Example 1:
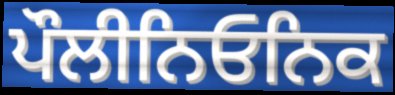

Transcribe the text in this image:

ਪੌਲੀਨਿਓਨਿਕ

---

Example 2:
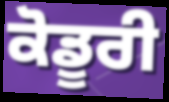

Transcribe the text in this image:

ਕੋਡੂਰੀ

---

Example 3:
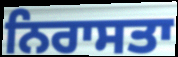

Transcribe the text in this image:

ਨਿਰਾਸਤਾ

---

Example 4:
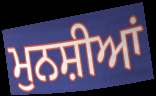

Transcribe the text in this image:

ਮੁਨਸ਼ੀਆਂ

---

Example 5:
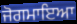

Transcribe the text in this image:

ਜੋਗਮਾਇਆ